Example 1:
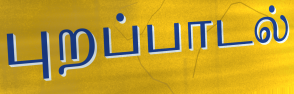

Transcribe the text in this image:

புறப்பாடல்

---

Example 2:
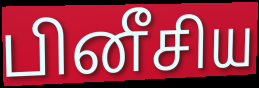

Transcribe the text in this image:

பினீசிய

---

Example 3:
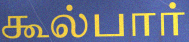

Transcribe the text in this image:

கூல்பார்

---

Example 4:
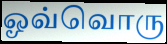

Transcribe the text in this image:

ஓவ்வொரு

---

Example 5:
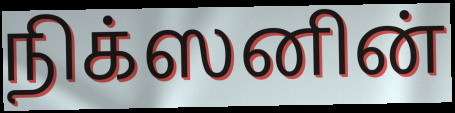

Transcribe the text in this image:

நிக்ஸனின்